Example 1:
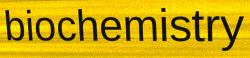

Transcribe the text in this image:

biochemistry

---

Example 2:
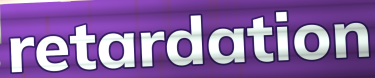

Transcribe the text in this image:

retardation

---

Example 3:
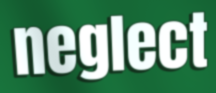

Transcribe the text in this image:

neglect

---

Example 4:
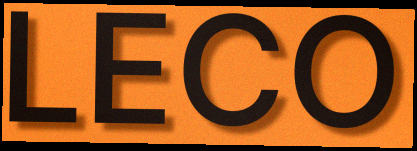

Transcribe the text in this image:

LECO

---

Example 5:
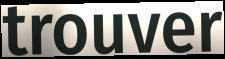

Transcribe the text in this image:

trouver